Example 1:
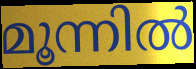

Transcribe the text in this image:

മൂന്നിൽ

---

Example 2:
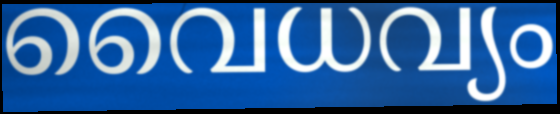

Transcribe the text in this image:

വൈധവ്യം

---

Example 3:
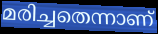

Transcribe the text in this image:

മരിച്ചതെന്നാണ്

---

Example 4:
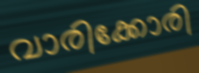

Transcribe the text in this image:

വാരിക്കോരി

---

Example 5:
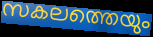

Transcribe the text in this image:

സകലത്തെയും